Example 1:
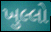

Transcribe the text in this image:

ખુલ્લો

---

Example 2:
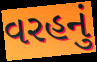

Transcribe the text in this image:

વરહનું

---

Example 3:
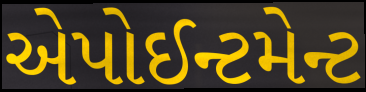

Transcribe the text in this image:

એપોઈન્ટમેન્ટ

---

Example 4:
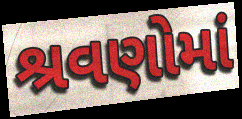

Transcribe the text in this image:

શ્રવણોમાં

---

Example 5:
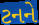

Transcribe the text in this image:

ટનને